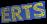
ERTS